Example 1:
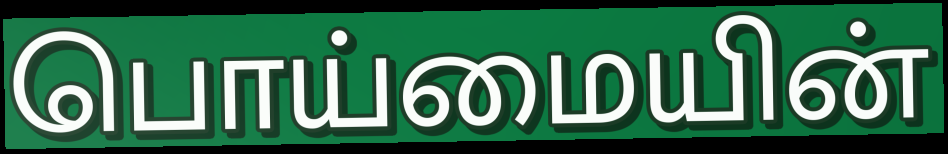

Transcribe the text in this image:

பொய்மையின்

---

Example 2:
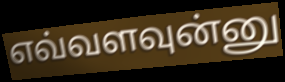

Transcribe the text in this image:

எவ்வளவுன்னு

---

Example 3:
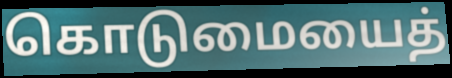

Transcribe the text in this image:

கொடுமையைத்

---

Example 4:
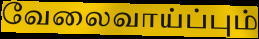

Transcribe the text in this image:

வேலைவாய்ப்பும்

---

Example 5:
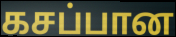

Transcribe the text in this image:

கசப்பான